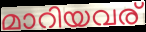
മാറിയവര്